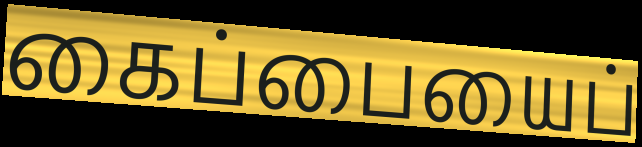
கைப்பையைப்